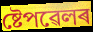
ষ্টেপৱেলৰ